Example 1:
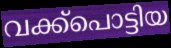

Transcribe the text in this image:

വക്ക്പൊട്ടിയ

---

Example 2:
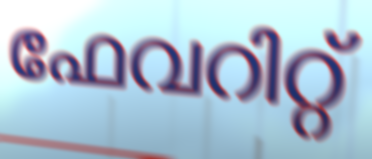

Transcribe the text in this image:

ഫേവറിറ്റ്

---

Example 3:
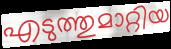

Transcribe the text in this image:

എടുത്തുമാറ്റിയ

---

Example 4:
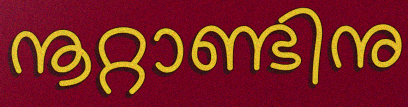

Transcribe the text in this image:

നൂറ്റാണ്ടിനു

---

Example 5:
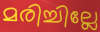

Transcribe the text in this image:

മരിച്ചില്ലേ